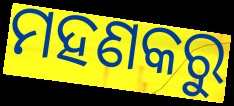
ମହଣକରୁ